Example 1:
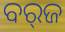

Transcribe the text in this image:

ବର୍‌ଜ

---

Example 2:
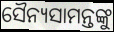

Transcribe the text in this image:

ସୈନ୍ୟସାମନ୍ତଙ୍କୁ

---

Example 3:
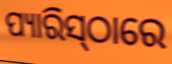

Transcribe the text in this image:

ପ୍ୟାରିସ୍‍ଠାରେ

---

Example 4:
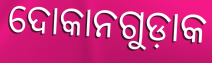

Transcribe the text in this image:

ଦୋକାନଗୁଡ଼ାକ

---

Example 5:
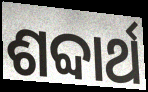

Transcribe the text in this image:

ଶବ୍ଦାର୍ଥ